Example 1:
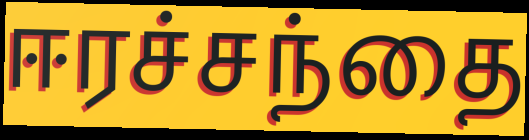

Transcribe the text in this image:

ஈரச்சந்தை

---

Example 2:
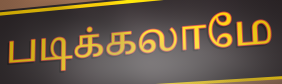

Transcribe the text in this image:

படிக்கலாமே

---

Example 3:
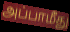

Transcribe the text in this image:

அப்பாமீது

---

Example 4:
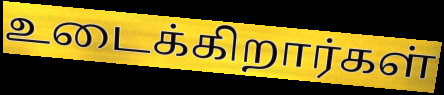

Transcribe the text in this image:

உடைக்கிறார்கள்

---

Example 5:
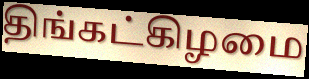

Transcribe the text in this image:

திங்கட்கிழமை